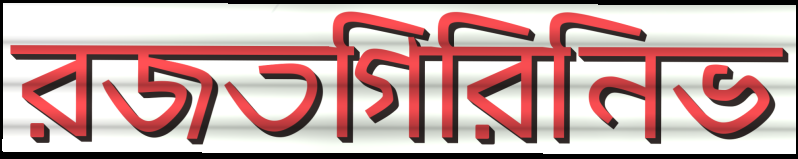
রজতগিরিনিভ